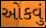
ઓકવું